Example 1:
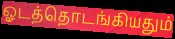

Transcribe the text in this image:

ஓடத்தொடங்கியதும்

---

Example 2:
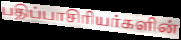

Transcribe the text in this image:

பதிப்பாசிரியர்களின்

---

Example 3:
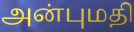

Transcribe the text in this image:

அன்புமதி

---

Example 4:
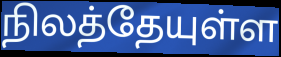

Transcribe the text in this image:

நிலத்தேயுள்ள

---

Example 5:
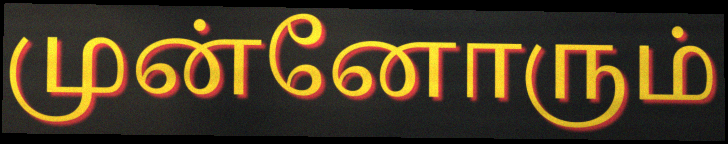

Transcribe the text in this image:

முன்னோரும்